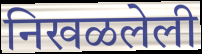
निखळलेली